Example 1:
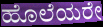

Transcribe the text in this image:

ಹೊಲೆಯರೇ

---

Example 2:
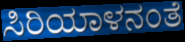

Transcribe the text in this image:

ಸಿರಿಯಾಳನಂತೆ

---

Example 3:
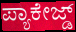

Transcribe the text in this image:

ಪ್ಯಾಕೇಜ್ಡ್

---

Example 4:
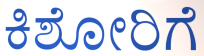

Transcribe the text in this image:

ಕಿಶೋರಿಗೆ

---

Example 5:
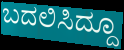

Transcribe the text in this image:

ಬದಲಿಸಿದ್ದೂ